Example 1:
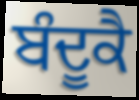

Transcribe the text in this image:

ਬੰਦੂਕੈ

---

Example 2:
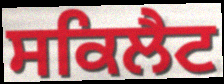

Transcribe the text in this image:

ਸਕਿਲੈਟ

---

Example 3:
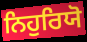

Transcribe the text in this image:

ਨਿਹੁਰਿਯੋ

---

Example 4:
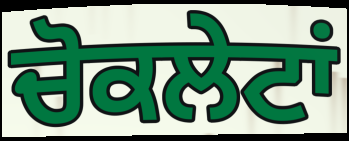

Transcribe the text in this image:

ਚੋਕਲੇਟਾਂ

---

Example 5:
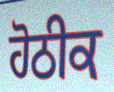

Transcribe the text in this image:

ਹੋਠੀਕ